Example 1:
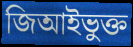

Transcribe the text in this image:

জিআইভুক্ত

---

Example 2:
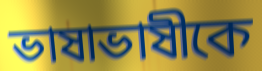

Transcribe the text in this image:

ভাষাভাষীকে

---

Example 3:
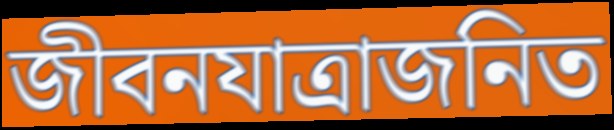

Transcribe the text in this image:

জীবনযাত্রাজনিত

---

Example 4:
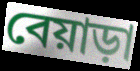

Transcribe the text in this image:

বেয়াড়া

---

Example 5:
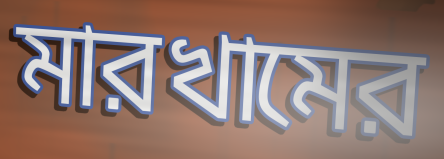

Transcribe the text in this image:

মারখামের